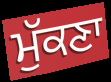
ਮੁੱਕਣਾ